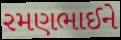
રમણભાઈને